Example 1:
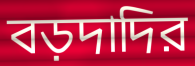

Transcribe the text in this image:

বড়দাদির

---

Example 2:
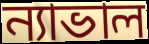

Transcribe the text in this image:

ন্যাভাল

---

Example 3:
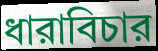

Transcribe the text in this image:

ধারাবিচার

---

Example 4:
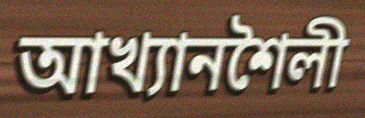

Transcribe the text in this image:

আখ্যানশৈলী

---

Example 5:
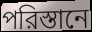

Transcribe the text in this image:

পরিস্তানে